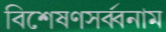
বিশেষণসৰ্ব্বনাম